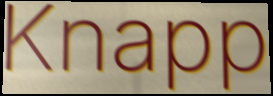
Knapp